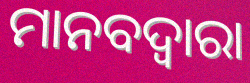
ମାନବଦ୍ୱାରା